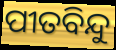
ପୀତବିନ୍ଦୁ